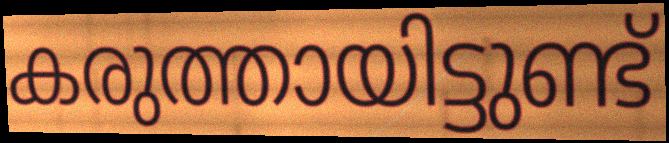
കരുത്തായിട്ടുണ്ട്